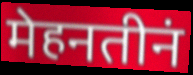
मेहनतीनं